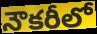
నౌకరీలో